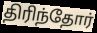
திரிந்தோர்